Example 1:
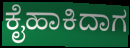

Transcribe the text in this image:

ಕೈಹಾಕಿದಾಗ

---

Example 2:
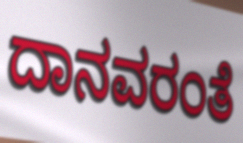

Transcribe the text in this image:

ದಾನವರಂತೆ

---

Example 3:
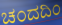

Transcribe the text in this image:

ಚಂದದಿಂ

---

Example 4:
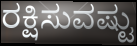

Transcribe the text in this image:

ರಕ್ಷಿಸುವಷ್ಟು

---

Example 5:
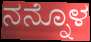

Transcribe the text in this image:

ನನ್ನೊಳ